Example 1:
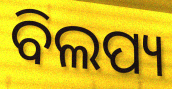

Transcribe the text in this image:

ବିଲପ୍ୟ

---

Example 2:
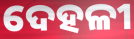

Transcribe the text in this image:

ଦେହଳୀ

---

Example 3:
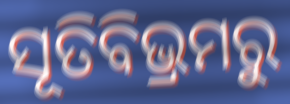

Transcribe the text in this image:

ସୂତିବିଭ୍ରମରୁ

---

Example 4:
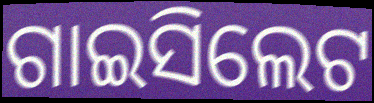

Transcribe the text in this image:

ଗାଇସିଲେଟ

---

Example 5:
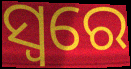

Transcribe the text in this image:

ସ୍ୱରେ